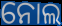
ନୋଲ